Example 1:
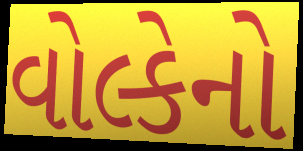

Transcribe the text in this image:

વોલ્કેનો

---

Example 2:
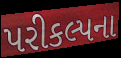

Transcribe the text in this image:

પરીકલ્પના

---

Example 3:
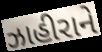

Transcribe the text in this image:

ઝાહીરાને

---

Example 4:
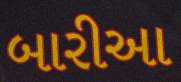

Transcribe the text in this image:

બારીઆ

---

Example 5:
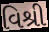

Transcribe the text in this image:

વિશ્રી